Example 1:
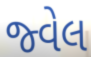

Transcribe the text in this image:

જ્વેલ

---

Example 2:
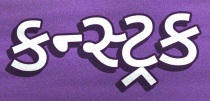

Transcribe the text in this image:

કન્સ્ટ્રક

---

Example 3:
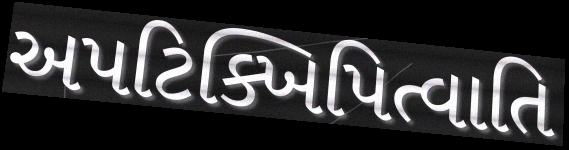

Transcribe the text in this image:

અપટિક્ખિપિત્વાતિ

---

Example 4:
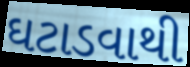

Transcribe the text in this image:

ઘટાડવાથી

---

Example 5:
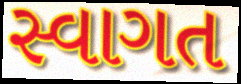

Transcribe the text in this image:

સ્વાગત